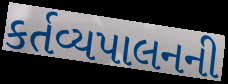
કર્તવ્યપાલનની